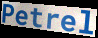
Petrel